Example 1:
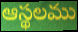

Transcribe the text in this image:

ఆస్థలము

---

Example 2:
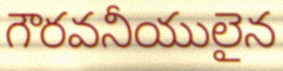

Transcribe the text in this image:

గౌరవనీయులైన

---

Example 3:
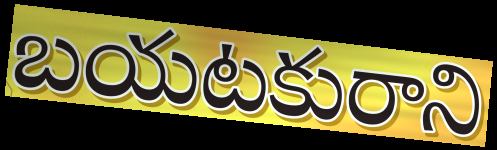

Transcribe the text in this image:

బయటకురాని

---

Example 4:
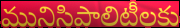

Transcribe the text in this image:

మునిసిపాలిటీలకు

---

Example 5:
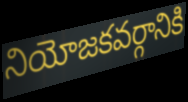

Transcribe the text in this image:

నియోజకవర్గానికి